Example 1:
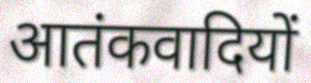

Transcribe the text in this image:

आतंकवादियों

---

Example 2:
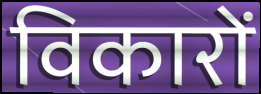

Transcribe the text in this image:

विकारों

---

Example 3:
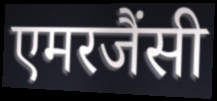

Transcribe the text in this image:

एमरजैंसी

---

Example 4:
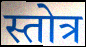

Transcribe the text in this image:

स्तोत्र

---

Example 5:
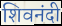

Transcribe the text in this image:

शिवनंदी